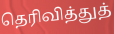
தெரிவித்துத்